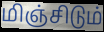
மிஞ்சிடும்